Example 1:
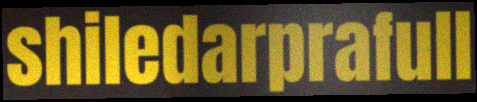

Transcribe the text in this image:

shiledarprafull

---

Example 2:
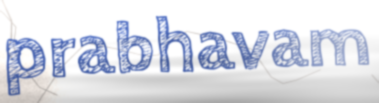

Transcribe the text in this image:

prabhavam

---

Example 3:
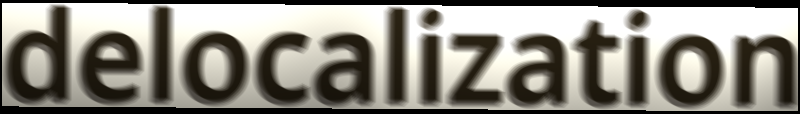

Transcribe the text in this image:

delocalization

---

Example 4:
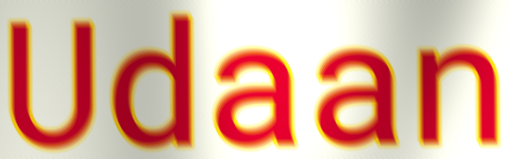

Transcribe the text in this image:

Udaan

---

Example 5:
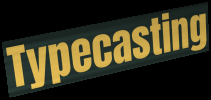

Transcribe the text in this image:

Typecasting